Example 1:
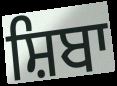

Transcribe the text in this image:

ਸ਼ਿਬਾ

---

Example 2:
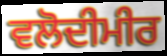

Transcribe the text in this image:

ਵਲੋਦੀਮੀਰ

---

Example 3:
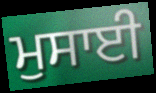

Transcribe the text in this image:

ਮੁਸਾਈ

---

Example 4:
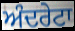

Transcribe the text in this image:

ਅੰਦਰੇਟਾ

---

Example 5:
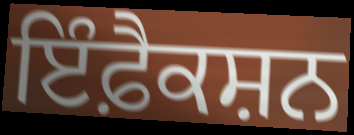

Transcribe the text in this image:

ਇੰਫ਼ੈਕਸ਼ਨ